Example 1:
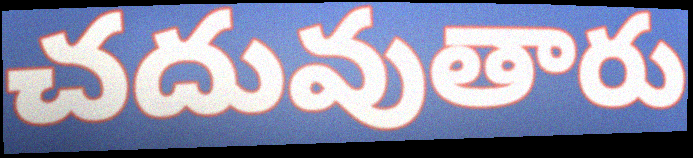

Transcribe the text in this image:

చదువుతారు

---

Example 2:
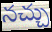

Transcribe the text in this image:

నచ్చు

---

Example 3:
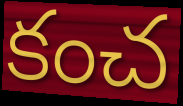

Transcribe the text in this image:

కంచ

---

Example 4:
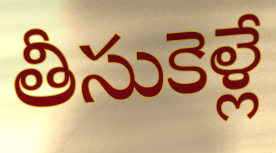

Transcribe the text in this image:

తీసుకెళ్లే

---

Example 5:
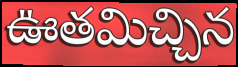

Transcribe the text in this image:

ఊతమిచ్చిన